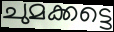
ചുമക്കട്ടെ